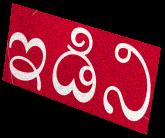
ఇడిని